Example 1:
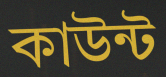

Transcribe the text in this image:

কাউন্ট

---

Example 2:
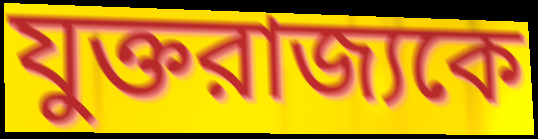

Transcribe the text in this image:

যুক্তরাজ্যকে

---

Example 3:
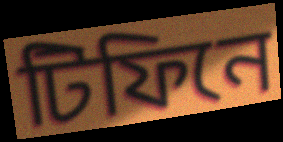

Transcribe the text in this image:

টিফিনে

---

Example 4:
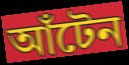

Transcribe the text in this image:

আঁটেন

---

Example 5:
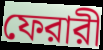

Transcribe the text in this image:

ফেরারী